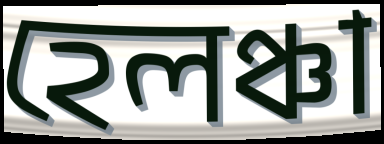
হেলঞ্চা